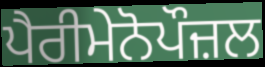
ਪੈਰੀਮੇਨੋਪੌਜ਼ਲ